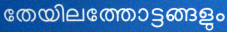
തേയിലത്തോട്ടങ്ങളും